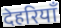
देहरियाँ